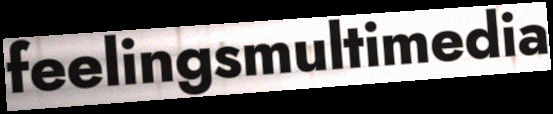
feelingsmultimedia